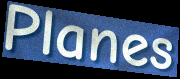
Planes